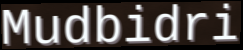
Mudbidri